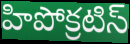
హిపోక్రటిస్